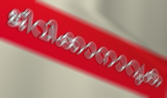
ജീവിക്കാനാവുക